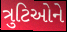
ત્રુટિઓને